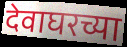
देवाघरच्या